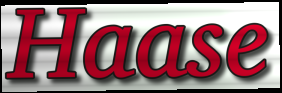
Haase